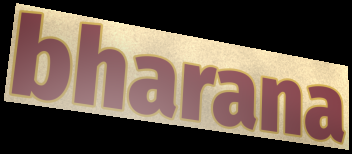
bharana